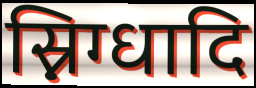
स्निग्धादि